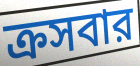
ক্রসবার